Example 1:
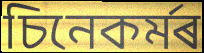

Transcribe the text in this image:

চিনেকৰ্মৰ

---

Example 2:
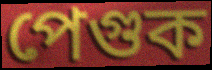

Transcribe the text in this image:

পেগুক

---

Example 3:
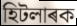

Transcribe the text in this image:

হিটলাৰক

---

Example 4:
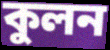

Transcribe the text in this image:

কুলন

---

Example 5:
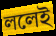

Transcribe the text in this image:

ললেই